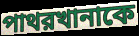
পাথরখানাকে